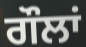
ਗੌਲਾਂ